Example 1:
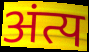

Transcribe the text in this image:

अंत्य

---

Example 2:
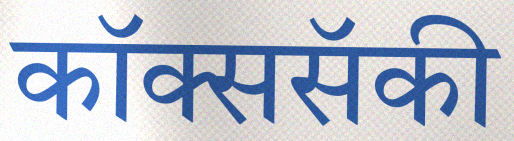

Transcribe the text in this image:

कॉक्ससॅकी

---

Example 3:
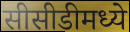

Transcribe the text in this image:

सीसीडीमध्ये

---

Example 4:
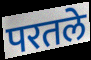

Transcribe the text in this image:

परतले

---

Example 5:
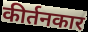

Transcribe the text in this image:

कीर्तनकार